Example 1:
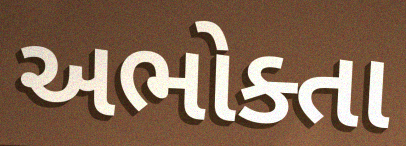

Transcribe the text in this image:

અભોક્તા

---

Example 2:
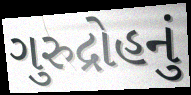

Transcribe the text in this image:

ગુરુદ્રોહનું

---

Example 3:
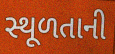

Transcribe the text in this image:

સ્થૂળતાની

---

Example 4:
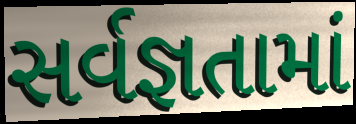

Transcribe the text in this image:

સર્વજ્ઞતામાં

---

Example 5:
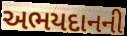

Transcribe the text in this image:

અભયદાનની